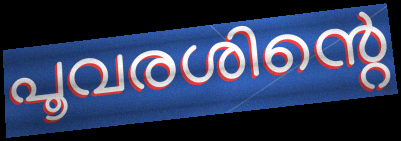
പൂവരശിന്റെ